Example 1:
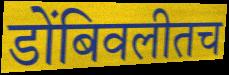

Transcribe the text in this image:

डोंबिवलीतच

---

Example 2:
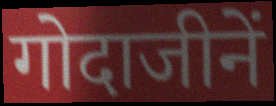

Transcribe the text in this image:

गोदाजीनें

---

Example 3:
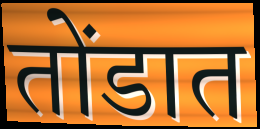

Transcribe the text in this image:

तोंडात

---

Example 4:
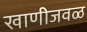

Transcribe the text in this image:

खाणीजवळ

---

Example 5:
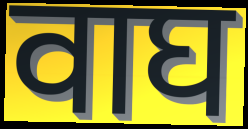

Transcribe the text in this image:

वाघ